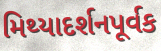
મિથ્યાદર્શનપૂર્વક